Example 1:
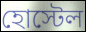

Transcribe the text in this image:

হোস্টেল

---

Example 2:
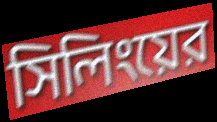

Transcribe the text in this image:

সিলিংয়ের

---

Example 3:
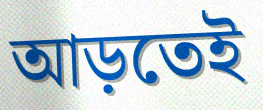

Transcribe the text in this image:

আড়তেই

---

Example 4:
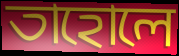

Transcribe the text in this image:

তাহোলে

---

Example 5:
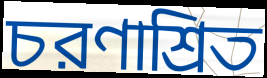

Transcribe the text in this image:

চরণাশ্রিত